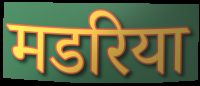
मडरिया